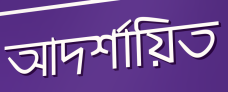
আদর্শায়িত